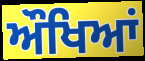
ਔਖਿਆਂ